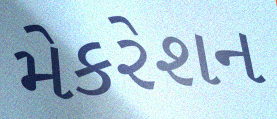
મેકરેશન